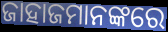
ଜାହାଜମାନଙ୍କରେ